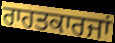
ਰਾਹਤਕਾਰਜਾਂ